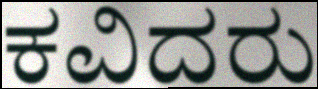
ಕವಿದರು